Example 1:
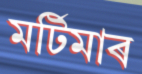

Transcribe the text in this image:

মৰ্টিমাৰ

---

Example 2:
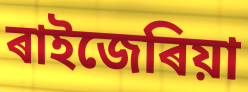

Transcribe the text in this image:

ৰাইজেৰিয়া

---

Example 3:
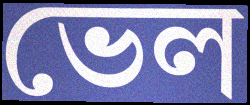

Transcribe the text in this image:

ভেল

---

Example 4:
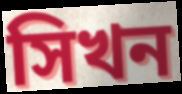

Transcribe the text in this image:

সিখন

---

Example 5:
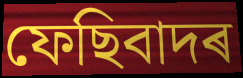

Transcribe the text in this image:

ফেছিবাদৰ